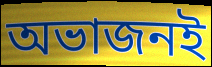
অভাজনই